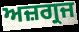
ਅਜ਼ਗ੍ਰਜ